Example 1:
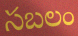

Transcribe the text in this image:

సబలం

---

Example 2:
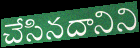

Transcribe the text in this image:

చేసినదానిని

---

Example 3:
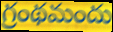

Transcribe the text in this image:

గ్రంథమందు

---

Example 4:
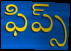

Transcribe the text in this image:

ఫిప్స్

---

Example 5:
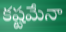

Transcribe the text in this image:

కష్టమేనా